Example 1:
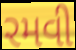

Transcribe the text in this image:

રમવી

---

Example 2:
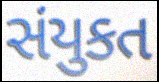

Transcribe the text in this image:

સંયુકત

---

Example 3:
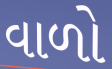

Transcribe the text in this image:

વાળો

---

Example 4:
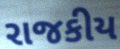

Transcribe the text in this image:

રાજકીય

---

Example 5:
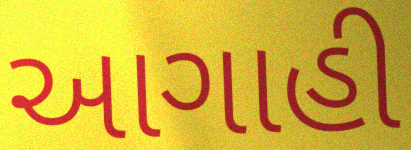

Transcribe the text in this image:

આગાહી